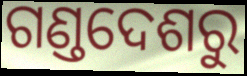
ଗଣ୍ଡଦେଶରୁ